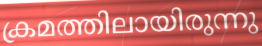
ക്രമത്തിലായിരുന്നു